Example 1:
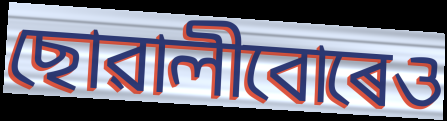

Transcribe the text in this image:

ছোৱালীবোৰেও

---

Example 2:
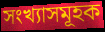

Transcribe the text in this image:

সংখ্যাসমূহক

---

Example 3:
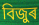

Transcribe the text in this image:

বিজুৰ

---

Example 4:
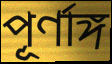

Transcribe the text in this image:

পূৰ্ণাঙ্গ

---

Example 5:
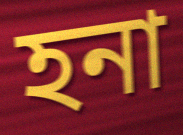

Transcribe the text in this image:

হনা